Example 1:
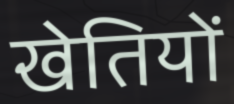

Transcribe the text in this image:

खेतियों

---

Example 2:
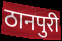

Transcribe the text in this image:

ठानपुरी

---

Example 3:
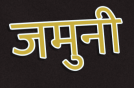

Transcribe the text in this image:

जमुनी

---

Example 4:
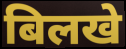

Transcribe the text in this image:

बिलखे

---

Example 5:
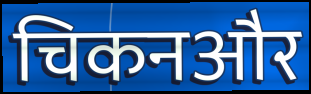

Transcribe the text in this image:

चिकनऔर